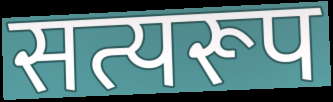
सत्यरूप